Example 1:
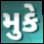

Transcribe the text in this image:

મુકે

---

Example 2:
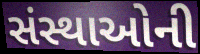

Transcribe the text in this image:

સંસ્થાઓની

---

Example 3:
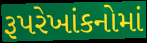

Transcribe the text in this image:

રૂપરેખાંકનોમાં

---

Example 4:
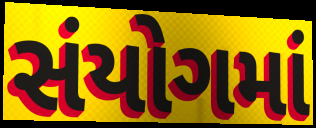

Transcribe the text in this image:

સંયોગમાં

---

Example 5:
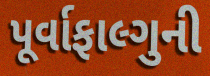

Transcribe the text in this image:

પૂર્વાફાલ્ગુની